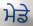
ਮੇਡੇ